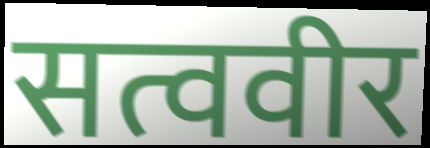
सत्ववीर